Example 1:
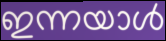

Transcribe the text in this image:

ഇന്നയാൾ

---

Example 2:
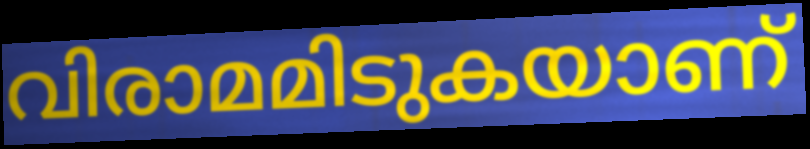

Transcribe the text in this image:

വിരാമമിടുകയാണ്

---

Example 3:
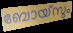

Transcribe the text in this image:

ബോയ്സും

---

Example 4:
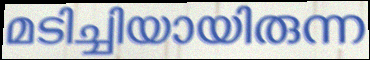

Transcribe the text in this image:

മടിച്ചിയായിരുന്ന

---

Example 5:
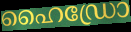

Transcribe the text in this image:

ഹൈഡ്രോ